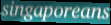
singaporeans